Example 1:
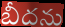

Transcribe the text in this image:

బీదను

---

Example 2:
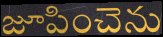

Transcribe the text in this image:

జూపించెను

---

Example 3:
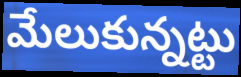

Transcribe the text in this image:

మేలుకున్నట్టు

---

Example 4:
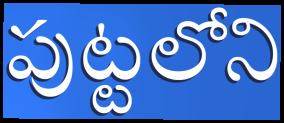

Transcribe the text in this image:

పుట్టలోని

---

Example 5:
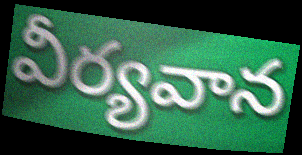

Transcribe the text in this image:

వీర్యవాన